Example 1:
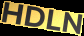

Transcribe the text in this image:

HDLN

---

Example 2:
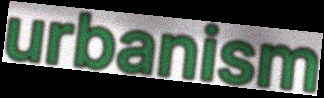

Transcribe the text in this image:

urbanism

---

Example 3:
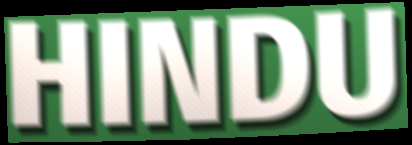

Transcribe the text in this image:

HINDU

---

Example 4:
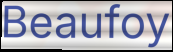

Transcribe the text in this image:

Beaufoy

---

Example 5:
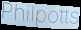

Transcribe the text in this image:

Philpotts